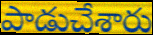
పాడుచేశారు